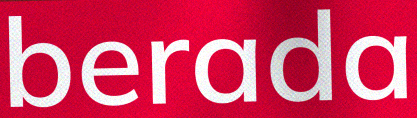
berada